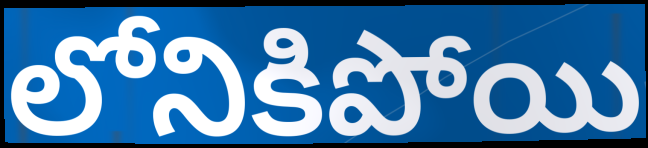
లోనికిపోయి